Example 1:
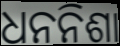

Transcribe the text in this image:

ଧନନିଶା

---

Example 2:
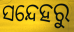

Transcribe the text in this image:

ସନ୍ଦେହରୁ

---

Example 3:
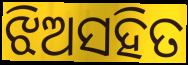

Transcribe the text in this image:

ଝିଅସହିତ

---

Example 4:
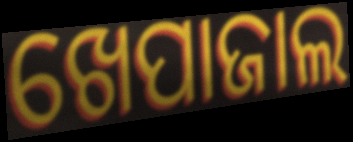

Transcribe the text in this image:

ଖେପାଜାଲ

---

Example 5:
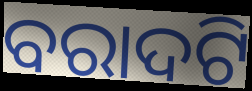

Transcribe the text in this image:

ବରାଦଟି